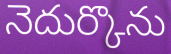
నెదుర్కొను